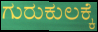
ಗುರುಕುಲಕ್ಕೆ